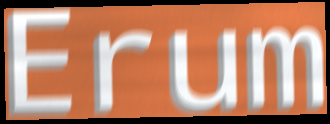
Erum